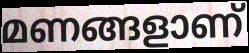
മണങ്ങളാണ്